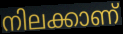
നിലക്കാണ്